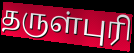
தருள்புரி